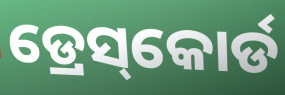
ଡ୍ରେସ୍‌କୋର୍ଡ